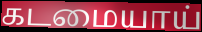
கடமையாய்